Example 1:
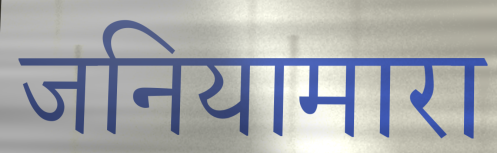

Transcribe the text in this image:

जनियामारा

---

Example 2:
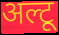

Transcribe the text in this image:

अल्टू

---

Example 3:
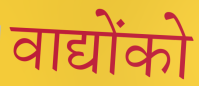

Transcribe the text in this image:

वाद्योंको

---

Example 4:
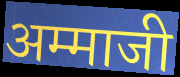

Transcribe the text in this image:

अम्माजी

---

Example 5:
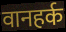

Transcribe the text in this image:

वानहर्क